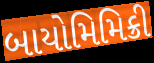
બાયોમિમિક્રી